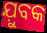
ଯ଼ୁବକ